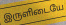
இருளிடையே